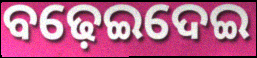
ବଢ଼େଇଦେଇ